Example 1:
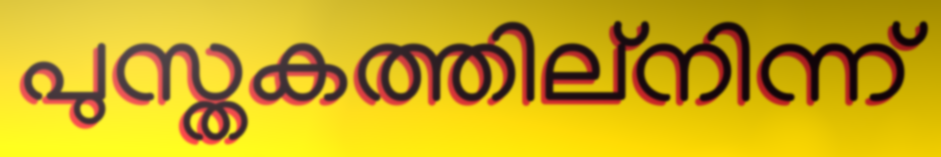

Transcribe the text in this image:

പുസ്തകത്തില്നിന്ന്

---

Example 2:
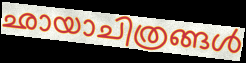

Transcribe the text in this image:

ഛായാചിത്രങ്ങൾ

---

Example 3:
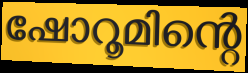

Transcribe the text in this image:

ഷോറൂമിന്റെ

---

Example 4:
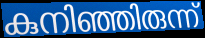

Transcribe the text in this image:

കുനിഞ്ഞിരുന്ന്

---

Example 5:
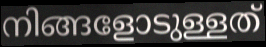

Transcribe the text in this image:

നിങ്ങളോടുള്ളത്